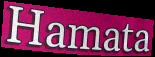
Hamata